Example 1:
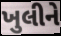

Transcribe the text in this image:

ખુલીને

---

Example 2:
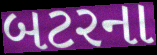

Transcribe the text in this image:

બટરના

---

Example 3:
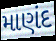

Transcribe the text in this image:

માણંદ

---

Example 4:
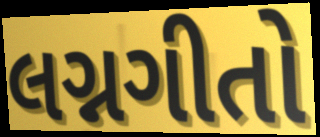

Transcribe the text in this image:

લગ્નગીતો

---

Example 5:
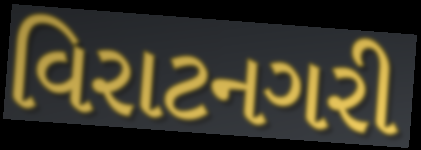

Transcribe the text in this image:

વિરાટનગરી